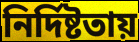
নির্দিষ্টতায়